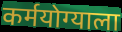
कर्मयोग्याला